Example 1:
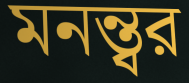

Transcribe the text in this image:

মনন্ত্বর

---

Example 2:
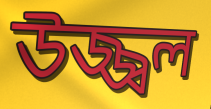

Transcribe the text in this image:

উজ্জ্বল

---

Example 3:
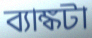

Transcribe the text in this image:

ব্যাঙ্কটা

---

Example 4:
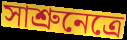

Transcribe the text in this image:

সাশ্রুনেত্রে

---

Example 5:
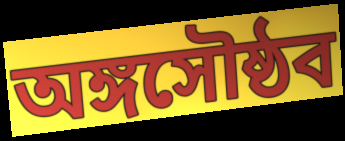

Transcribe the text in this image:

অঙ্গসৌষ্ঠব